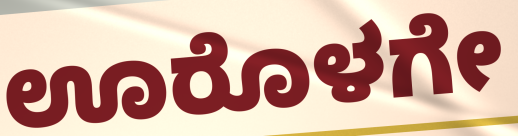
ಊರೊಳಗೇ